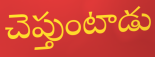
చెప్తుంటాడు